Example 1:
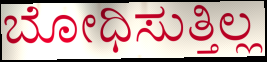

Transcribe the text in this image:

ಬೋಧಿಸುತ್ತಿಲ್ಲ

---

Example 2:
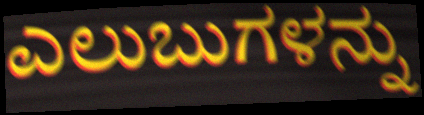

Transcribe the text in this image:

ಎಲುಬುಗಳನ್ನು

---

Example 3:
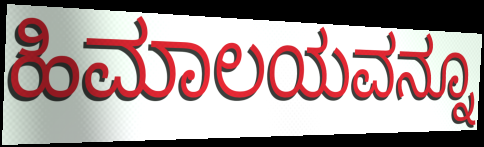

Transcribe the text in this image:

ಹಿಮಾಲಯವನ್ನೂ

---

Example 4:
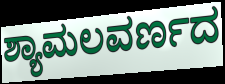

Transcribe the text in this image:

ಶ್ಯಾಮಲವರ್ಣದ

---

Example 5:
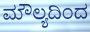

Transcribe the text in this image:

ಮೌಲ್ಯದಿಂದ